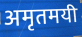
अमृतमयी